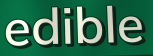
edible